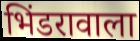
भिंडरावाला